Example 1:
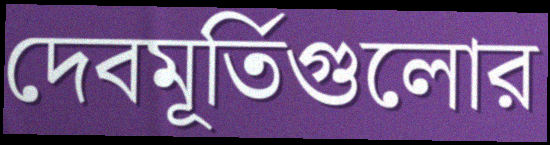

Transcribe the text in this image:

দেবমূর্তিগুলোর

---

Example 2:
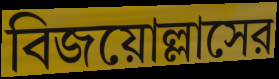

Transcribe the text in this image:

বিজয়োল্লাসের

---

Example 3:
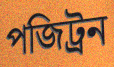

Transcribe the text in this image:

পজিট্রন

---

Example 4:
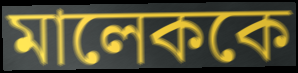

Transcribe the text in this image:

মালেককে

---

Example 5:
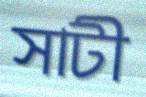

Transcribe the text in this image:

সাটী